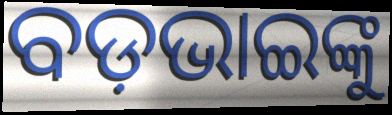
ବଡ଼ଭାଇଙ୍କୁ